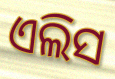
ଏଲିସ